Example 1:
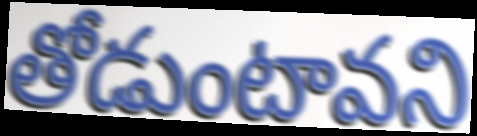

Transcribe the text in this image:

తోడుంటావని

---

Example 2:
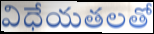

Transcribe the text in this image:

విధేయతలతో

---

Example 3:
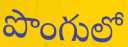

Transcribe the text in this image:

పొంగులో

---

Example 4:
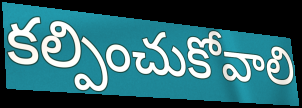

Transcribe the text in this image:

కల్పించుకోవాలి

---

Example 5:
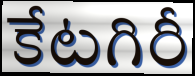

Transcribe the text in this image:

కేటగిరీ